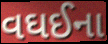
વઘઈના